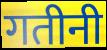
गतीनी